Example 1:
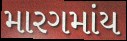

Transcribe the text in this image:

મારગમાંય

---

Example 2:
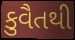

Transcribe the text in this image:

કુવૈતથી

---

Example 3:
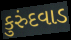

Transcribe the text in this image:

કુરુંદવાડ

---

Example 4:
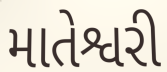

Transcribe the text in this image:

માતેશ્વરી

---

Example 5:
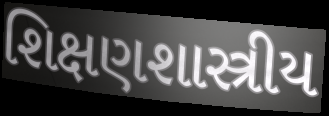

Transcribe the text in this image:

શિક્ષણશાસ્ત્રીય